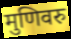
मुणिवरु